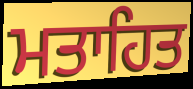
ਮਤਾਹਿਤ